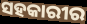
ସହକାରୀର